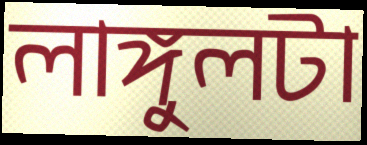
লাঙ্গুলটা